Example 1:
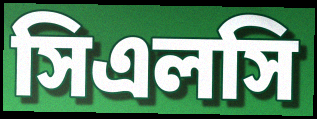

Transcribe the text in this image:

সিএলসি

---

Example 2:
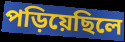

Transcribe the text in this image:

পড়িয়েছিলে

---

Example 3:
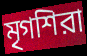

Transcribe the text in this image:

মৃগশিরা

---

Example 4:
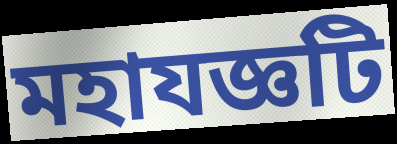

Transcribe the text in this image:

মহাযজ্ঞটি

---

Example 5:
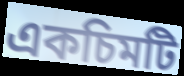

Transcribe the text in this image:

একচিমটি